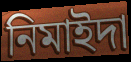
নিমাইদা